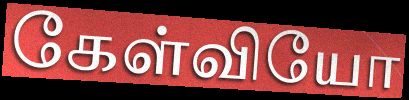
கேள்வியோ